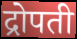
द्रोपती